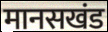
मानसखंड